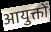
आयुक्तों